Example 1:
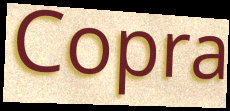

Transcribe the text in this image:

Copra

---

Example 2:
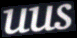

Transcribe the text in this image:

uus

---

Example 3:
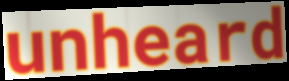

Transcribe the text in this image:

unheard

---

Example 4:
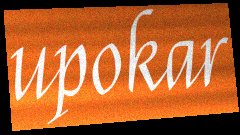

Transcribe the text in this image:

upokar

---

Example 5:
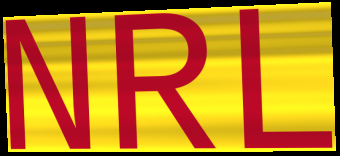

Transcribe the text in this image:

NRL